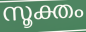
സൂക്തം